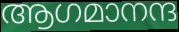
ആഗമാനന്ദ